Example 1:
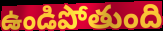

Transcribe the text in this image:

ఉండిపోతుంది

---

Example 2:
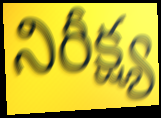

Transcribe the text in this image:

నిరీక్ష్య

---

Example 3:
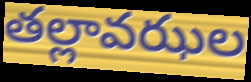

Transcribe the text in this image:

తల్లావఝల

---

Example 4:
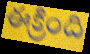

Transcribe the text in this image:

ఈక్రింది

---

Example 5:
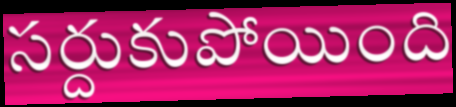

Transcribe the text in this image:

సర్దుకుపోయింది